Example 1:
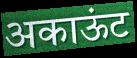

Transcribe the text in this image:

अकाऊंट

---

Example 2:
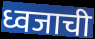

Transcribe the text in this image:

ध्वजाची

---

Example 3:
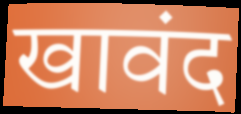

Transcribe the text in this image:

खावंद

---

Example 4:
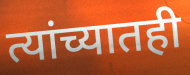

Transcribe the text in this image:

त्यांच्यातही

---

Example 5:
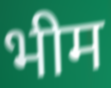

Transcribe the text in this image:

भीम